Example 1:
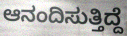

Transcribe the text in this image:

ಆನಂದಿಸುತ್ತಿದ್ದೆ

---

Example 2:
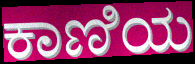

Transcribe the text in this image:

ಕಾಣಿಯ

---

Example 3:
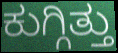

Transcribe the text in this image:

ಕುಗ್ಗಿತ್ತು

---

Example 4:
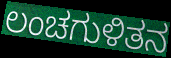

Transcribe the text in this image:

ಲಂಚಗುಳಿತನ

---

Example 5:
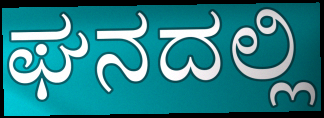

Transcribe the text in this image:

ಘನದಲ್ಲಿ